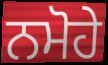
ਨਮੋਹੇ